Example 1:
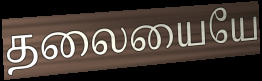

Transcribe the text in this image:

தலையையே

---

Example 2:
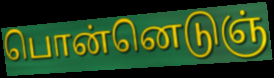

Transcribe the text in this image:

பொன்னெடுஞ்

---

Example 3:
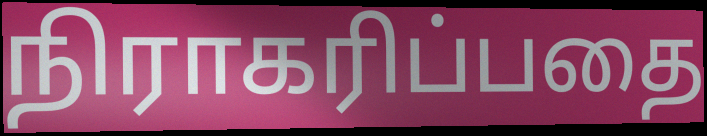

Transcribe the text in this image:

நிராகரிப்பதை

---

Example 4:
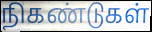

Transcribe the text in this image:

நிகண்டுகள்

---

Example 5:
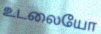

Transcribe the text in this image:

உடலையோ